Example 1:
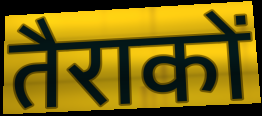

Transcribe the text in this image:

तैराकों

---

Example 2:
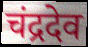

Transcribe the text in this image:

चंद्रदेव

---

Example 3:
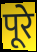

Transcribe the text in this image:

पूरे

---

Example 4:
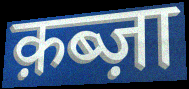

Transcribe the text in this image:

क़ब्ज़ा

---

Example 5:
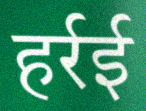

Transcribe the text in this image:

हर्रई